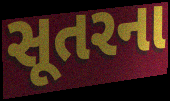
સૂતરના